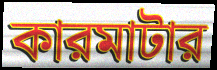
কারমাটার